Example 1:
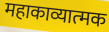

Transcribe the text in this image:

महाकाव्‍यात्‍मक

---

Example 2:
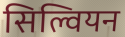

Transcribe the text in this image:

सिल्वियन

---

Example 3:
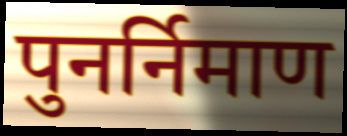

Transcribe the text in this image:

पुनर्निमाण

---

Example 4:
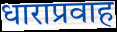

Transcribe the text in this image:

धाराप्रवाह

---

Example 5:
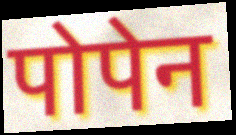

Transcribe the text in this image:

पोपेन